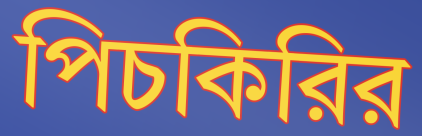
পিচকিরির